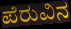
ಪೆರುವಿನ